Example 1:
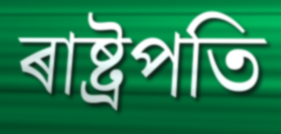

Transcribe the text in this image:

ৰাষ্ট্ৰপতি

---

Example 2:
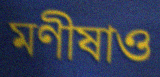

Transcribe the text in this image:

মণীষাও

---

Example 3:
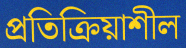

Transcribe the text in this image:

প্ৰতিক্ৰিয়াশীল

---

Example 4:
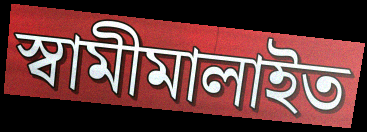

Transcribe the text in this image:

স্বামীমালাইত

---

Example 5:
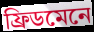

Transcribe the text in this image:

ফ্ৰিডমেনে